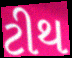
ટીથ